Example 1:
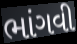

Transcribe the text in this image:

ભાંગવી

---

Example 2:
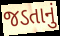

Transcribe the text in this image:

જડતાનું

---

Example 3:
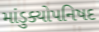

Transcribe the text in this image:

માંડુક્યોપનિષદ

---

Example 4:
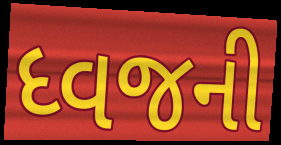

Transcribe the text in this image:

ધ્વજની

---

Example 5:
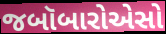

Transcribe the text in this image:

જબૉબારોએસો